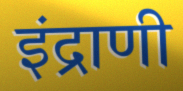
इंद्राणी